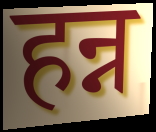
हन्न